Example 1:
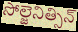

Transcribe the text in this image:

సోల్జెనిత్సిన్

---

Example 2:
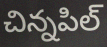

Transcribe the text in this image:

చిన్నపిల్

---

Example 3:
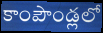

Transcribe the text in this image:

కాంపౌండ్లలో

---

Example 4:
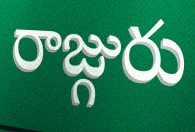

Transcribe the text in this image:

రాజ్గురు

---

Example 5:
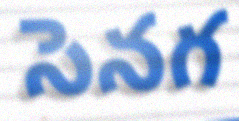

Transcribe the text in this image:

సెనగ